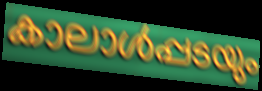
കാലാൾപ്പടയും